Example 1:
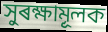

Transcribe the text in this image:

সুৰক্ষামূলক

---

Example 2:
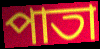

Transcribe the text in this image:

পাতা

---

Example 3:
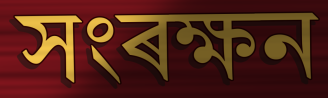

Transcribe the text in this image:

সংৰক্ষন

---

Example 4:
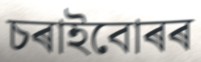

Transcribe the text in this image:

চৰাইবোৰৰ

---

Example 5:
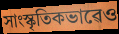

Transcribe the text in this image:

সাংস্কৃতিকভাৱেও